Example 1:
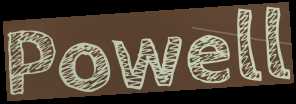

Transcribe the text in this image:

Powell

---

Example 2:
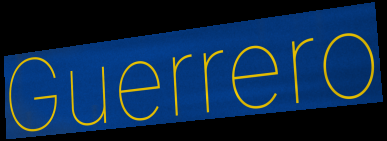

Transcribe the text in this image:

Guerrero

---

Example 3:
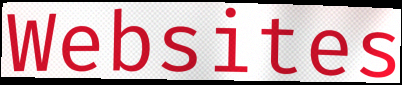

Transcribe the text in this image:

Websites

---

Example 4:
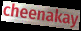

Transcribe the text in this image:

cheenakay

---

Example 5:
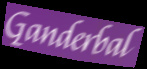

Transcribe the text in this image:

Ganderbal